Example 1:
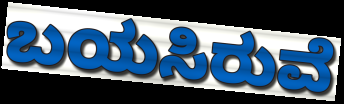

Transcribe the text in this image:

ಬಯಸಿರುವೆ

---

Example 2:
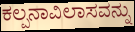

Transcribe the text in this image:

ಕಲ್ಪನಾವಿಲಾಸವನ್ನು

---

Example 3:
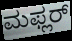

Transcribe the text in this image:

ಮಫ್ಲರ್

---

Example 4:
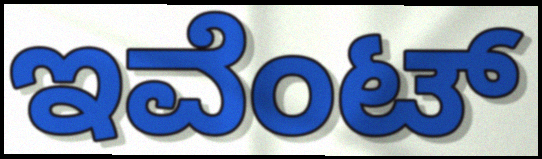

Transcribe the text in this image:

ಇವೆಂಟ್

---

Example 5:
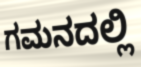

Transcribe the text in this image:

ಗಮನದಲ್ಲಿ